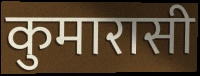
कुमारासी